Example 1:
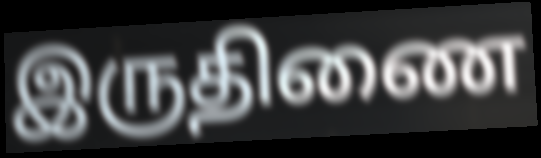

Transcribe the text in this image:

இருதிணை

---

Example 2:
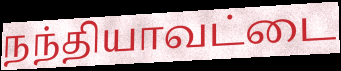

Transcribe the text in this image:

நந்தியாவட்டை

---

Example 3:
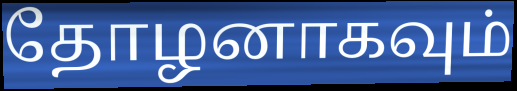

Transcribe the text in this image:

தோழனாகவும்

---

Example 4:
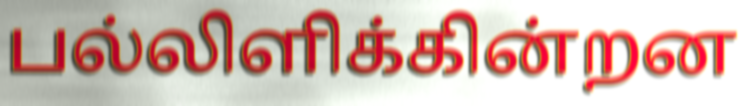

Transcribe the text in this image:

பல்லிளிக்கின்றன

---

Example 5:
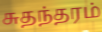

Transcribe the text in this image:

சுதந்தரம்